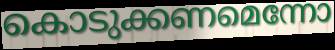
കൊടുക്കണമെന്നോ